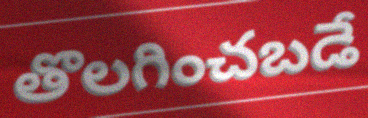
తొలగించబడే